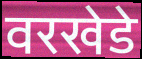
वरखेडे